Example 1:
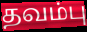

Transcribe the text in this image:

தவம்பு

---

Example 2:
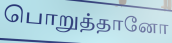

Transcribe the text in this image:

பொறுத்தானோ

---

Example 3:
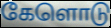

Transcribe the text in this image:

கேளொடு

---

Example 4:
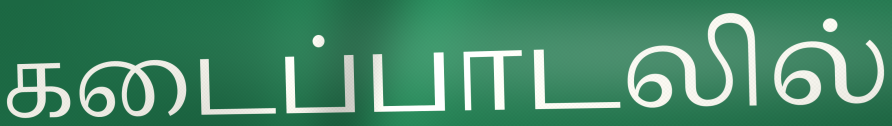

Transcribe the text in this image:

கடைப்பாடலில்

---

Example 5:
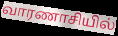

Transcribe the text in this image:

வாரணாசியில்